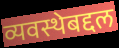
व्यवस्थेबद्दल